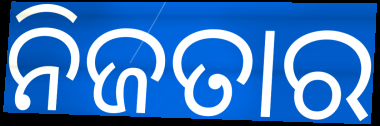
ନିଜତାର